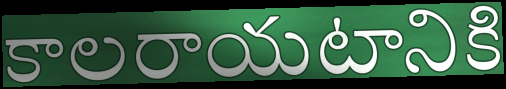
కాలరాయటానికి